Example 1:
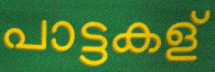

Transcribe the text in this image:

പാട്ടകള്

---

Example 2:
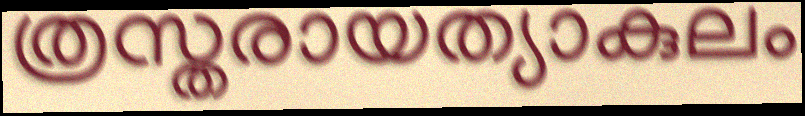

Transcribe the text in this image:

ത്രസ്തരായത്യാകുലം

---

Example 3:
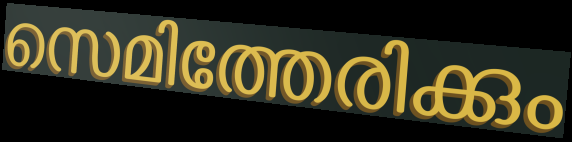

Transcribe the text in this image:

സെമിത്തേരിക്കും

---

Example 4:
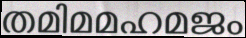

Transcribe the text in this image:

തമിമമഹമജം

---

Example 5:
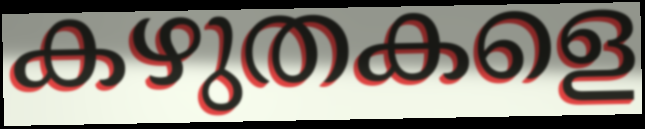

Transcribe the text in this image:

കഴുതകളെ